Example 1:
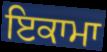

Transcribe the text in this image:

ਇਕਾਮਾ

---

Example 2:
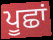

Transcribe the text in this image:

ਪੂਛਾਂ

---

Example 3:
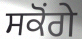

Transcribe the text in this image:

ਸਕੋਂਗੇ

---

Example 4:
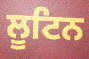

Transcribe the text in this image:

ਲੂਟਿਨ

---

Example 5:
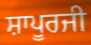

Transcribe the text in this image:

ਸ਼ਾਪੂਰਜੀ